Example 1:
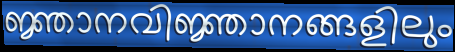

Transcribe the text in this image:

ജ്ഞാനവിജ്ഞാനങ്ങളിലും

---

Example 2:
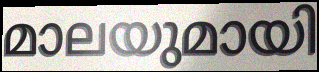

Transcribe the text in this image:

മാലയുമായി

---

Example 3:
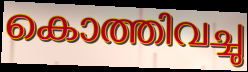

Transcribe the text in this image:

കൊത്തിവച്ചു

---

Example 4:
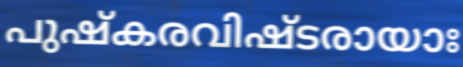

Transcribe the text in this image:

പുഷ്കരവിഷ്ടരായാഃ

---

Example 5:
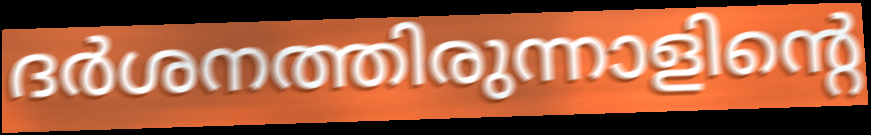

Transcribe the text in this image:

ദർശനത്തിരുന്നാളിന്റെ